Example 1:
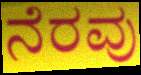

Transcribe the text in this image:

ನೆರವು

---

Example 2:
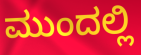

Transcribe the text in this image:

ಮುಂದಲ್ಲಿ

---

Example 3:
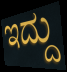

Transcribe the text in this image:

ಇದ್ದು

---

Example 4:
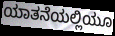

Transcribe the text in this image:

ಯಾತನೆಯಲ್ಲಿಯೂ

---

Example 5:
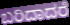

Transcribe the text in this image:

ಬರಿದಾದರೆ